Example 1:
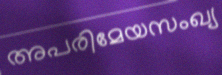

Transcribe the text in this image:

അപരിമേയസംഖ്യ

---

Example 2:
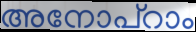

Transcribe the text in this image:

അനോപ്റാം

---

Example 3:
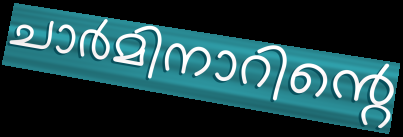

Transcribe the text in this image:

ചാർമിനാറിന്റെ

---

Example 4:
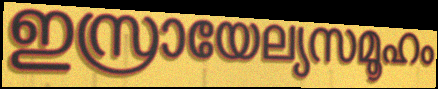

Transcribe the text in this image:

ഇസ്രായേല്യസമൂഹം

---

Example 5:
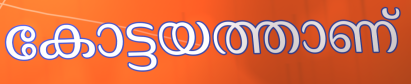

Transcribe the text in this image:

കോട്ടയത്താണ്